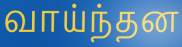
வாய்ந்தன